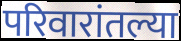
परिवारांतल्या